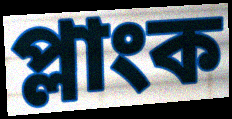
প্লাংক